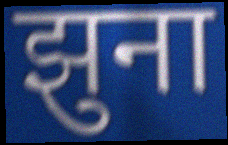
झुना